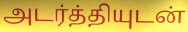
அடர்த்தியுடன்